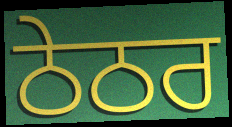
ਠੇਠਰ